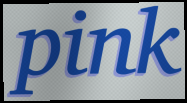
pink